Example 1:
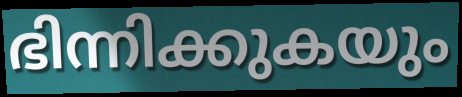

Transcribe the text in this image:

ഭിന്നിക്കുകയും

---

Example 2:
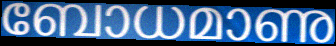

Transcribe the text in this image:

ബോധമാണു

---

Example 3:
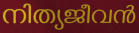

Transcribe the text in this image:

നിത്യജീവൻ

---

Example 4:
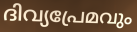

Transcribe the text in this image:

ദിവ്യപ്രേമവും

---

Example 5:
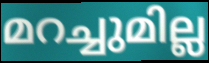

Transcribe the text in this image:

മറച്ചുമില്ല